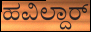
ಹವಿಲ್ದಾರ್